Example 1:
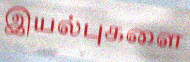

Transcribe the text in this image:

இயல்புகளை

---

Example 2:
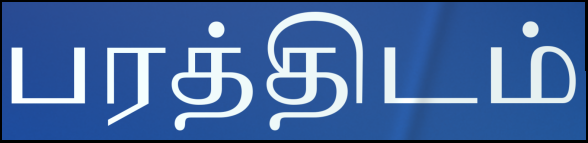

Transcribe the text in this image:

பரத்திடம்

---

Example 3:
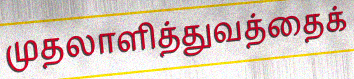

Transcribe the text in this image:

முதலாளித்துவத்தைக்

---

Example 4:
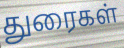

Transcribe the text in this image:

துரைகள்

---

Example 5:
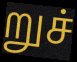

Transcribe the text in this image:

றுச்